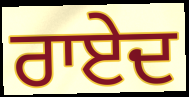
ਰਾਏਦ